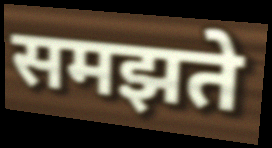
समझते